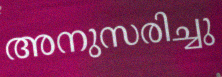
അനുസരിച്ചു